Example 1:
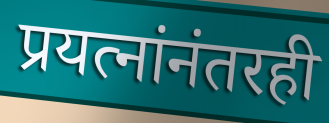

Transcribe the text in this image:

प्रयत्नांनंतरही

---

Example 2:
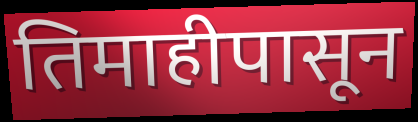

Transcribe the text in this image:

तिमाहीपासून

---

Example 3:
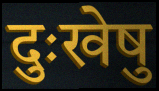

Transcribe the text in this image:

दुःखेषु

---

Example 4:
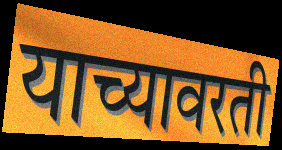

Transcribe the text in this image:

याच्यावरती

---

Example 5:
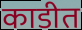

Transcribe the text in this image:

काडीत